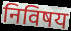
निविषय